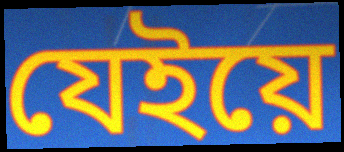
যেইয়ে